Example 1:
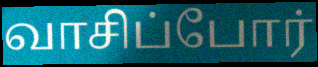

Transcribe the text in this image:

வாசிப்போர்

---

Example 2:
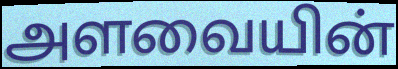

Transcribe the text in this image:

அளவையின்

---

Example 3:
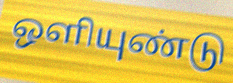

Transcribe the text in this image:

ஒளியுண்டு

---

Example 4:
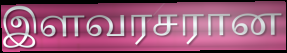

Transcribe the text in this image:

இளவரசரான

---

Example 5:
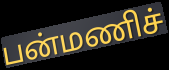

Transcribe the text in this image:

பன்மணிச்